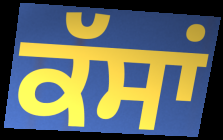
ਕੱਸਾਂ